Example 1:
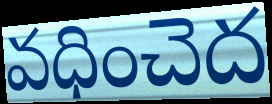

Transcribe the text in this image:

వధించెద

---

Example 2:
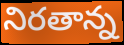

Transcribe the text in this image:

నిరతాన్న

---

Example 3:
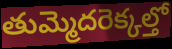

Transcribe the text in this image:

తుమ్మెదరెక్కల్తో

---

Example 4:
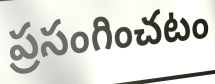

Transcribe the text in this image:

ప్రసంగించటం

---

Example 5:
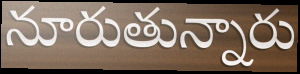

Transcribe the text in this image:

నూరుతున్నారు